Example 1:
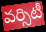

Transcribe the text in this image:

వర్సిటీ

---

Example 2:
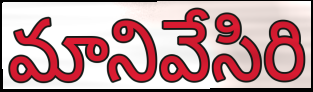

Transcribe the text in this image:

మానివేసిరి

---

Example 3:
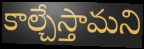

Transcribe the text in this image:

కాల్చేస్తామని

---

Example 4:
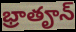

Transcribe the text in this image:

భ్రాతౄన్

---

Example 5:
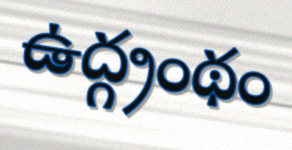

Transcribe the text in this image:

ఉద్గ్రంథం